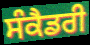
ਸੰਕੈਡਰੀ